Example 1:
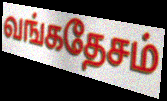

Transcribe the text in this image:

வங்கதேசம்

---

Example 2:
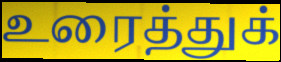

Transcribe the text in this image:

உரைத்துக்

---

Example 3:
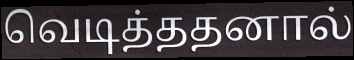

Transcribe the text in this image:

வெடித்ததனால்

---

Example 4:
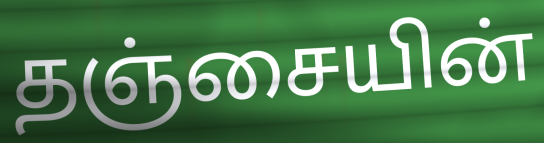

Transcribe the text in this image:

தஞ்சையின்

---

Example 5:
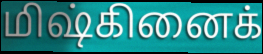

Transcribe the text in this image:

மிஷ்கினைக்